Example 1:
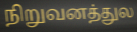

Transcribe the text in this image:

நிறுவனத்துல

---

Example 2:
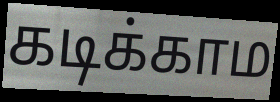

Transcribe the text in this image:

கடிக்காம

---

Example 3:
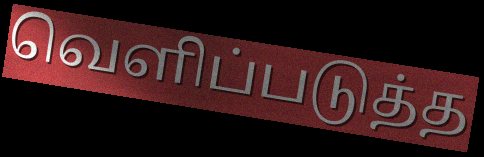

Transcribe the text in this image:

வெளிப்படுத்த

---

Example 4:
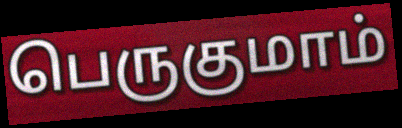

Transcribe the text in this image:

பெருகுமாம்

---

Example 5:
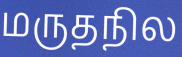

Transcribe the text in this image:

மருதநில